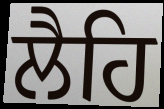
ਲੈਹਿ